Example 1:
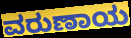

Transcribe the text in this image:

ವರುಣಾಯ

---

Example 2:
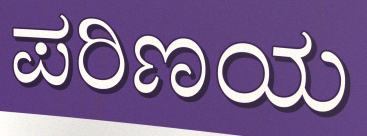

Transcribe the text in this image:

ಪರಿಣಯ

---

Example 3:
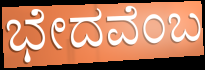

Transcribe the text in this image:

ಭೇದವೆಂಬ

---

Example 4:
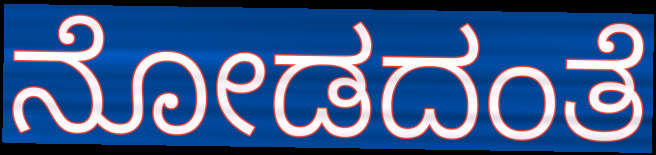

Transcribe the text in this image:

ನೋಡದಂತೆ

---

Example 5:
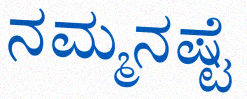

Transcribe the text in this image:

ನಮ್ಮನಷ್ಟೆ